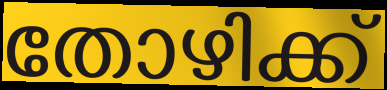
തോഴിക്ക്